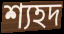
শ্যহদ